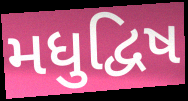
મધુદ્વિષ